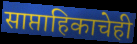
साप्ताहिकाचेही